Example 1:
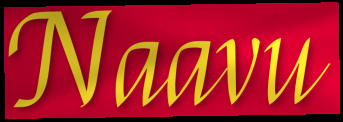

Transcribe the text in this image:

Naavu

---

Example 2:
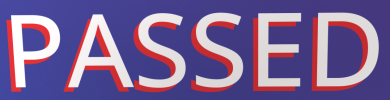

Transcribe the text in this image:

PASSED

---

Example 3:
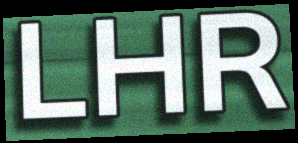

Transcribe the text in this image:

LHR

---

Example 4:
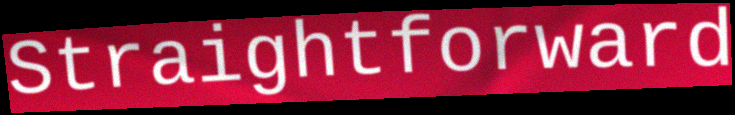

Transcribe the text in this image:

Straightforward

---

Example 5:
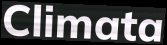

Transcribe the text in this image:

Climata